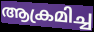
ആക്രമിച്ച